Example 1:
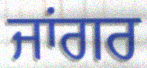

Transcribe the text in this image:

ਜਾਂਗਰ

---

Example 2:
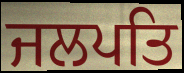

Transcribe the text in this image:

ਜਲਪਤਿ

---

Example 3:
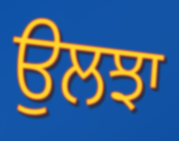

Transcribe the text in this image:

ਉਲਝਾ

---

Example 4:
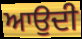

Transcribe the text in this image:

ਆਉਦੀ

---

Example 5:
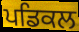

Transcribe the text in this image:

ਪਡਿਕਲ